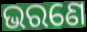
ଭରଣେ